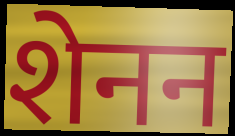
शेनन